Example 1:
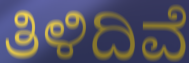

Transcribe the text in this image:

ತಿಳಿದಿವೆ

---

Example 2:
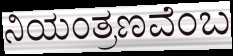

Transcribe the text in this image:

ನಿಯಂತ್ರಣವೆಂಬ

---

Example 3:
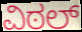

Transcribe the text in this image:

ವಿಠಲ್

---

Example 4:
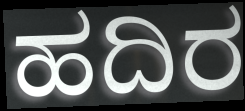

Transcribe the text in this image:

ಹದಿರ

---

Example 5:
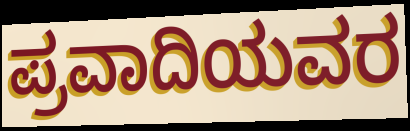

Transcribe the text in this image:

ಪ್ರವಾದಿಯವರ